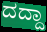
ದದ್ದಾ